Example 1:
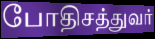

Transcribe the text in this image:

போதிசத்துவர்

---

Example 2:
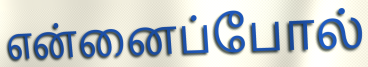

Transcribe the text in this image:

என்னைப்போல்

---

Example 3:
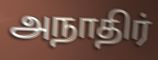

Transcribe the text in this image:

அநாதிர்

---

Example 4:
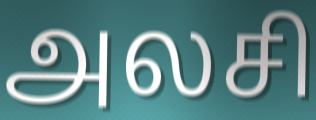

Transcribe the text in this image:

அலசி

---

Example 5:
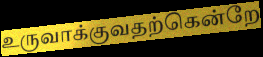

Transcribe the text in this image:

உருவாக்குவதற்கென்றே